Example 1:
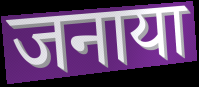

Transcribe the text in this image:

जनाया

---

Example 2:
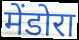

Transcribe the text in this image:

मेंडोरा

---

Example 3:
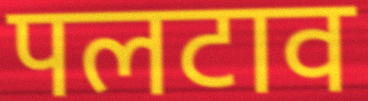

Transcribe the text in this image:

पलटाव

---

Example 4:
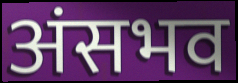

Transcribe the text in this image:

अंसभव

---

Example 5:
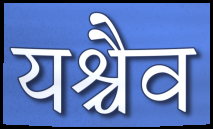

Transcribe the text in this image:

यश्चैव